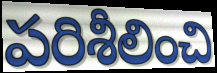
పరిశీలించి